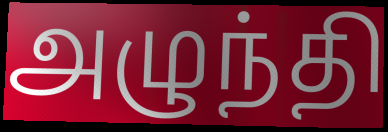
அழுந்தி